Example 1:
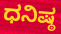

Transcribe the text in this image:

ಧನಿಷ್ಠ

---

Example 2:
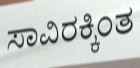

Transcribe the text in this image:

ಸಾವಿರಕ್ಕಿಂತ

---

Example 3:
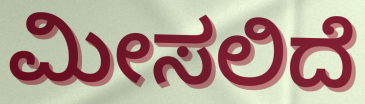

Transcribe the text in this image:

ಮೀಸಲಿದೆ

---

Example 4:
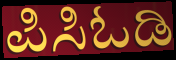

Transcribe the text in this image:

ಪಿಸಿಓಡಿ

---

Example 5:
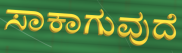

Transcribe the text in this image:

ಸಾಕಾಗುವುದೆ